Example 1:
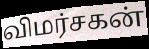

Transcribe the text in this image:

விமர்சகன்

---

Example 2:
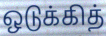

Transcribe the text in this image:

ஒடுக்கித்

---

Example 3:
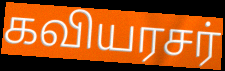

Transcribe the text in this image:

கவியரசர்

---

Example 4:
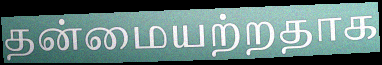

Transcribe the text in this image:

தன்மையற்றதாக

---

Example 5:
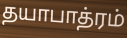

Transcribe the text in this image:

தயாபாத்ரம்